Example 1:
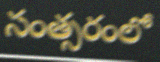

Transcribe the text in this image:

సంత్సరంలో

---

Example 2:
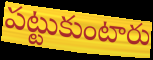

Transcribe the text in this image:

పట్టుకుంటారు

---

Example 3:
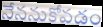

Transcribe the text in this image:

నేననుకోవడం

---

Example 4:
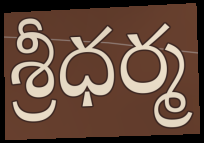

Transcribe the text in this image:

శ్రీధర్మ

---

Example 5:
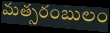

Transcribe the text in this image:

మత్సరంబులం